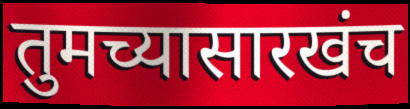
तुमच्यासारखंच